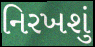
નિરખશું